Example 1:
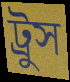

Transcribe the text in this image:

ট্রুস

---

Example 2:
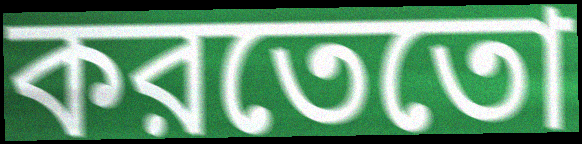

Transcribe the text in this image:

করতেতো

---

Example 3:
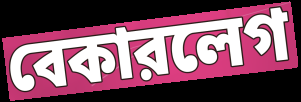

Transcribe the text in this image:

বেকারলেগ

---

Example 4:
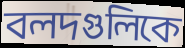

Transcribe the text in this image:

বলদগুলিকে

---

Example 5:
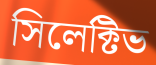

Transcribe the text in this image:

সিলেক্টিভ